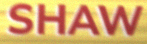
SHAW